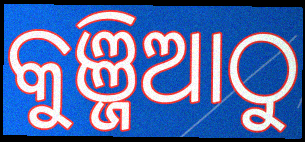
କୁଞ୍ଜିଆଠୁ